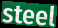
steel